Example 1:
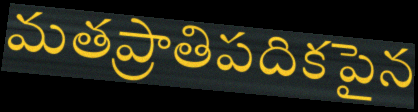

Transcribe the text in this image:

మతప్రాతిపదికపైన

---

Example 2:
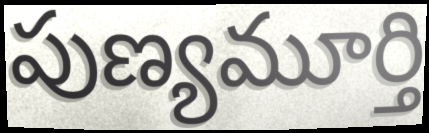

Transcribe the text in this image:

పుణ్యమూర్తి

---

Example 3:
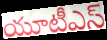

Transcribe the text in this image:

యూటీఎస్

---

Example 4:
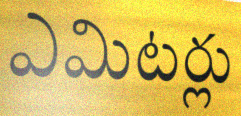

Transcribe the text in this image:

ఎమిటర్లు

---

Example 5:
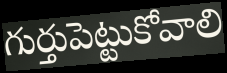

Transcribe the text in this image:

గుర్తుపెట్టుకోవాలి